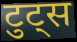
टुट्स